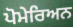
ਪੋਮੇਰਿਅਨ